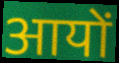
आयों